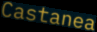
Castanea